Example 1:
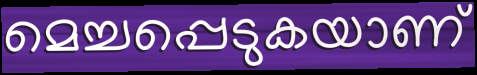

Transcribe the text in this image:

മെച്ചപ്പെടുകയാണ്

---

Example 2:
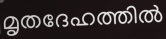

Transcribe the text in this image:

മൃതദേഹത്തിൽ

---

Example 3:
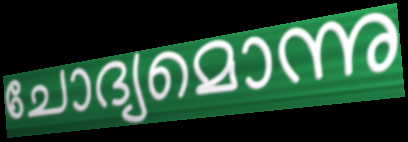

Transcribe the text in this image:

ചോദ്യമൊന്നു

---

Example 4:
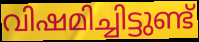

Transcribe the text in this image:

വിഷമിച്ചിട്ടുണ്ട്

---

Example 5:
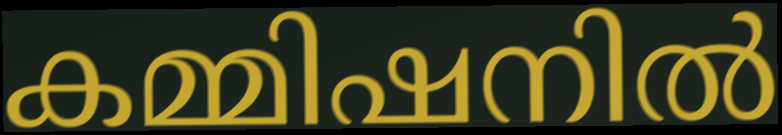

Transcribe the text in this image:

കമ്മിഷനിൽ